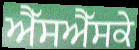
ਐੱਸਐੱਸਕੇ